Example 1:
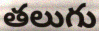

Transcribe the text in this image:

తలుగు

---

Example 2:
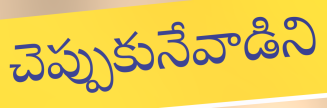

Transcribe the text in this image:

చెప్పుకునేవాడిని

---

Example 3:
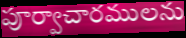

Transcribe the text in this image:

పూర్వాచారములను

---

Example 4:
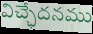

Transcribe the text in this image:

విచ్ఛేదనము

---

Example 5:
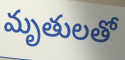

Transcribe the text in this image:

మృతులతో